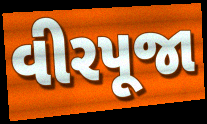
વીરપૂજા